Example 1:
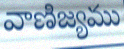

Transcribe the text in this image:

వాణిజ్యము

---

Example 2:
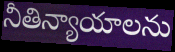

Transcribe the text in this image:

నీతిన్యాయాలను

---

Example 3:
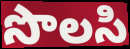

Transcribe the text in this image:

సొలసి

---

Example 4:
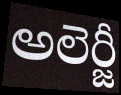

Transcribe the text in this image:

అలెర్జీ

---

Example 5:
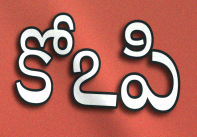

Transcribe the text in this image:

కోఽపి